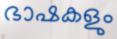
ഭാഷകളും